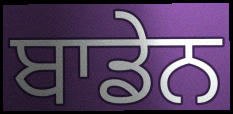
ਬਾਡੇਨ